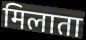
मिलाता